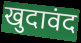
खुदावंद